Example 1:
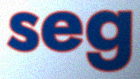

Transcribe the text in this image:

seg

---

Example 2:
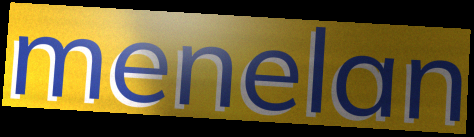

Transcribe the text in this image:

menelan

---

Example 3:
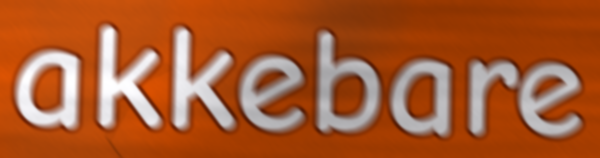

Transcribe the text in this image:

akkebare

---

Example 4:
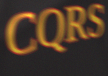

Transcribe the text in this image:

CQRS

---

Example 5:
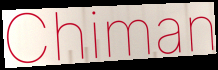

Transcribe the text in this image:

Chiman